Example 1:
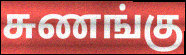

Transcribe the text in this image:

சுணங்கு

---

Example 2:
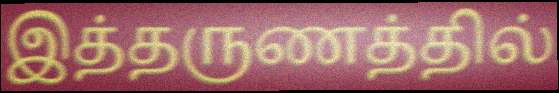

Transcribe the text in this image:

இத்தருணத்தில்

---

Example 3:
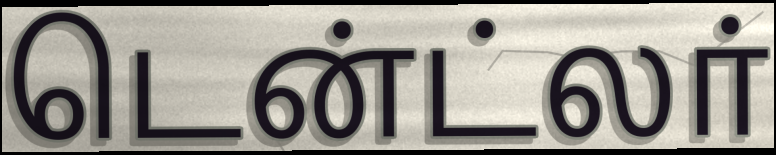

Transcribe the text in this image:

டென்ட்லர்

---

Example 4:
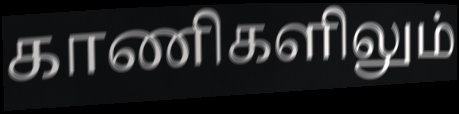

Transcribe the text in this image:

காணிகளிலும்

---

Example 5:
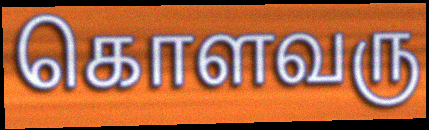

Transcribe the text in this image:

கொளவரு